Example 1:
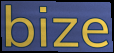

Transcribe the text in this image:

bize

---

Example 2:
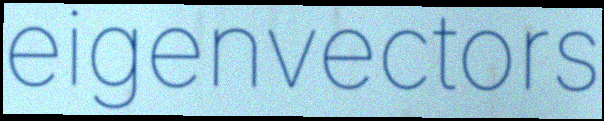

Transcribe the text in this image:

eigenvectors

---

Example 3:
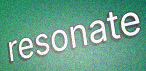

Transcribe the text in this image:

resonate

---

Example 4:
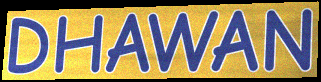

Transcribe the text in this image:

DHAWAN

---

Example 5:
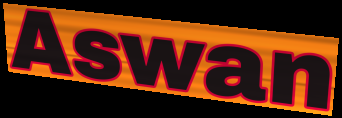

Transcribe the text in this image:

Aswan